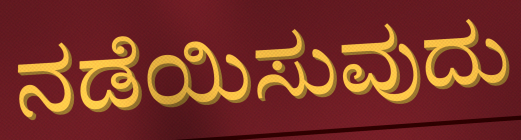
ನಡೆಯಿಸುವುದು